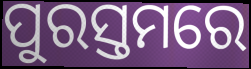
ପୁରସ୍ତମରେ